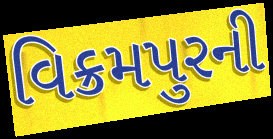
વિક્રમપુરની